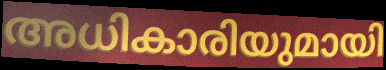
അധികാരിയുമായി